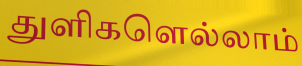
துளிகளெல்லாம்